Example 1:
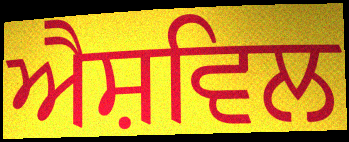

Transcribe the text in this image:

ਐਸ਼ਵਿਲ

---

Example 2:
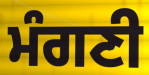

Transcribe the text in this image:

ਮੰਗਣੀ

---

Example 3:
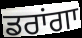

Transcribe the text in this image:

ਡਰਾਂਗਾ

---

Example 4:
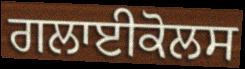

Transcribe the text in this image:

ਗਲਾਈਕੋਲਸ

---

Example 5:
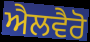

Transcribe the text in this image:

ਐਲਵੈਰੋ